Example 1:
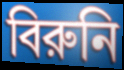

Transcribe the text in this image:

বিরুনি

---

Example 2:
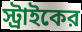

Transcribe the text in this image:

স্ট্রাইকের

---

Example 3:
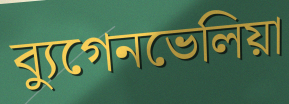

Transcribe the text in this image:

ব্যুগেনভেলিয়া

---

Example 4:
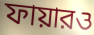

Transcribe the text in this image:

ফায়ারও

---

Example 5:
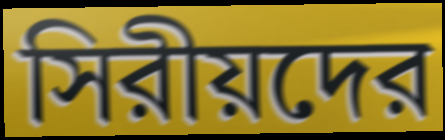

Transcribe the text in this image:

সিরীয়দের